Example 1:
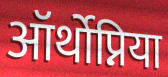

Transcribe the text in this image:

ऑर्थोप्निया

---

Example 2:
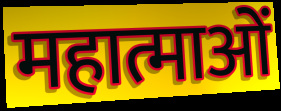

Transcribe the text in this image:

महात्माओं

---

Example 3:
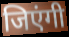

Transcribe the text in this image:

जिएंगी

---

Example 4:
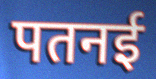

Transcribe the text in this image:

पतनई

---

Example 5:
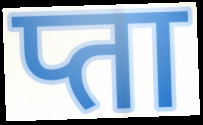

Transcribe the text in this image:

प्ता